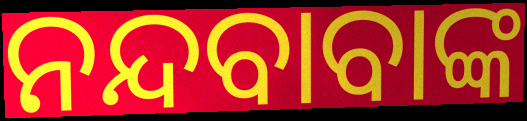
ନନ୍ଦବାବାଙ୍କ